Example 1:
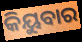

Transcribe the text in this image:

କିୟୁବାର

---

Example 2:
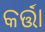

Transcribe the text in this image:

କର୍ତ୍ତା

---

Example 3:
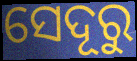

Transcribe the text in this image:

ସେଦୂରୁ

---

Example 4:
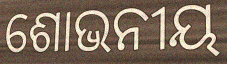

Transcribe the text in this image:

ଶୋଭନୀୟ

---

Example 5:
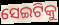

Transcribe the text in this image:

ସେଇଟିକୁ